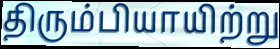
திரும்பியாயிற்று